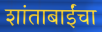
शांताबाईंचा